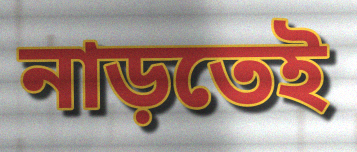
নাড়তেই